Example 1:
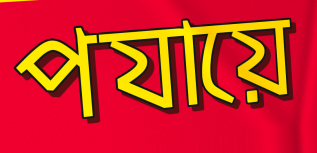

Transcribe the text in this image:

পযায়ে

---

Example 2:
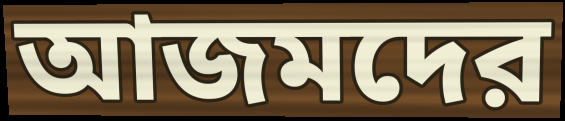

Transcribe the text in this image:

আজমদের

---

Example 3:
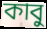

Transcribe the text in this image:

কাবু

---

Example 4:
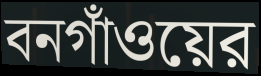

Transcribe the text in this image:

বনগাঁওয়ের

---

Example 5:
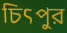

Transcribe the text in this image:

চিৎপুর